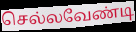
செல்லவேண்டி